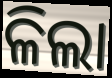
ଳିଲା